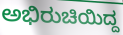
ಅಭಿರುಚಿಯಿದ್ದ